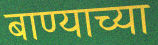
बाण्याच्या